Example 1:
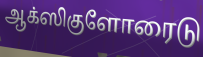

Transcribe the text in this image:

ஆக்ஸிகுளோரைடு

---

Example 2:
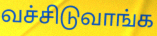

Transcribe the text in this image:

வச்சிடுவாங்க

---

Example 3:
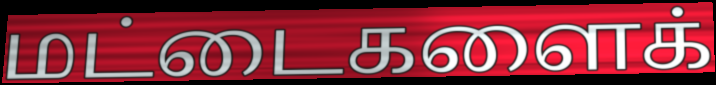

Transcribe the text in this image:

மட்டைகளைக்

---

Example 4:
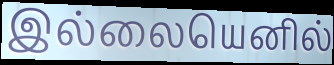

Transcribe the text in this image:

இல்லையெனில்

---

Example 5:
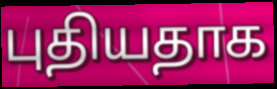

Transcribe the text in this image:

புதியதாக